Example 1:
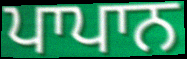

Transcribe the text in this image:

ਪਾਪਾਨ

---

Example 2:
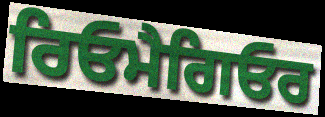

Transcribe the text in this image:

ਰਿਓਮੈਗਿਓਰ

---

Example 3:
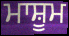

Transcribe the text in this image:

ਮਾਸ਼ੂਮ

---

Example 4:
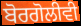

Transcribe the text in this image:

ਬੋਰਗੋਲੀਵੀ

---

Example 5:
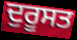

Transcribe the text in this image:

ਦੁਰੂਸਤ